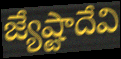
జ్యేష్టాదేవి